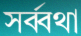
সৰ্ব্বথা